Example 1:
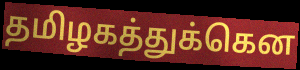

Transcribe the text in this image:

தமிழகத்துக்கென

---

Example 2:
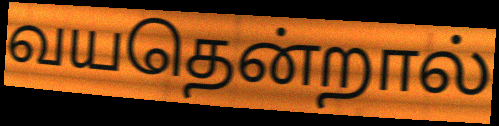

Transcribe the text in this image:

வயதென்றால்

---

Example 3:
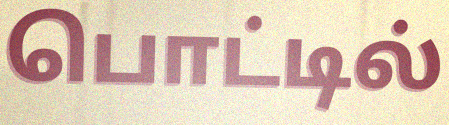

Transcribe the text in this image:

பொட்டில்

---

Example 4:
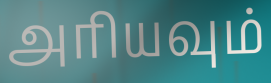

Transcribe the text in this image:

அரியவும்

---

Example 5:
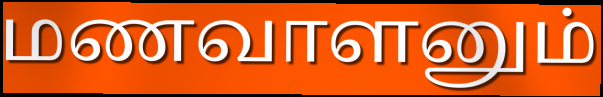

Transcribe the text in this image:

மணவாளனும்